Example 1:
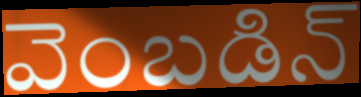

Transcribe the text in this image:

వెంబడిన్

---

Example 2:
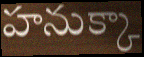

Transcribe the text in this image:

హనుక్కా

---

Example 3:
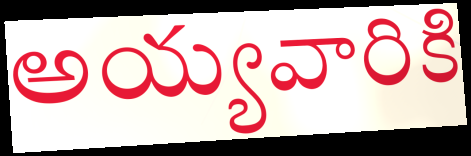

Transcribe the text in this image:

అయ్యవారికి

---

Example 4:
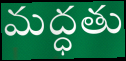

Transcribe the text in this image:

మద్ధతు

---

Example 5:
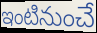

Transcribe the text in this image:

ఇంటినుంచే